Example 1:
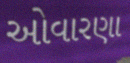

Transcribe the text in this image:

ઓવારણા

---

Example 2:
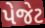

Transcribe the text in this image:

પેજેટ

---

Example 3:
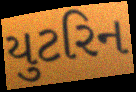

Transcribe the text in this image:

યુટરિન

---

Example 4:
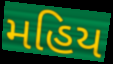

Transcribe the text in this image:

મહિય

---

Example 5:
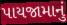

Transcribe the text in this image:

પાયજામાનું